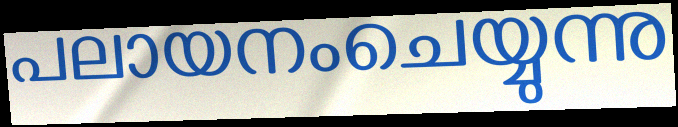
പലായനംചെയ്യുന്നു